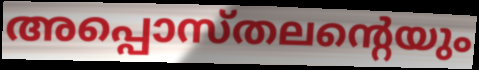
അപ്പൊസ്തലന്റെയും